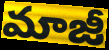
మాజీ